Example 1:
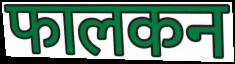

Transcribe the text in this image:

फालकन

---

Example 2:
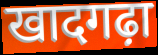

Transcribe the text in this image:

खादगढ़ा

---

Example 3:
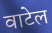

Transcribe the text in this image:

वाटेल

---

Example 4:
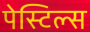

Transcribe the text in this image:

पेस्टिल्स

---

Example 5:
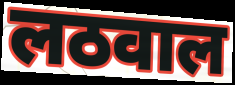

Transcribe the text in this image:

लठवाल